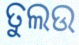
ତୁଲଉ